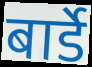
बार्डे